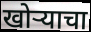
खोऱ्याचा